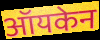
ऑयकेन